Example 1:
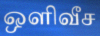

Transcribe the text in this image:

ஒளிவீச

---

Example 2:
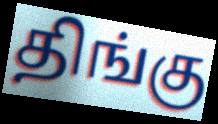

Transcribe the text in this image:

திங்கு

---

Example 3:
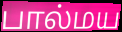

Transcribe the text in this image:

பால்மய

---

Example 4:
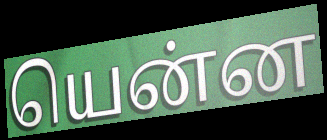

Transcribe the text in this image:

யென்ன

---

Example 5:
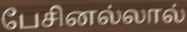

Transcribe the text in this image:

பேசினல்லால்